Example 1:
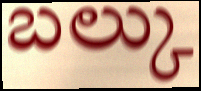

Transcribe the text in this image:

బల్కు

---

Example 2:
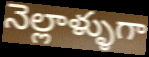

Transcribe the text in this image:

నెల్లాళ్ళుగా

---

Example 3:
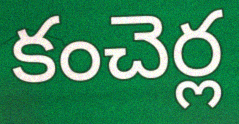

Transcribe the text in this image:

కంచెర్ల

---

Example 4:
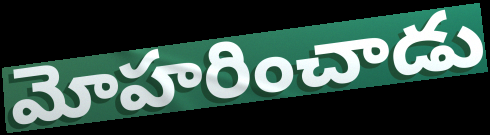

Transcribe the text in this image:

మోహరించాడు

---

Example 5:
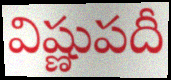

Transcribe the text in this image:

విష్ణుపదీ